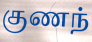
குணந்